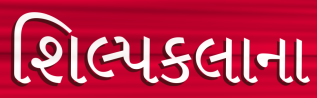
શિલ્પકલાના